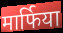
मार्फिया